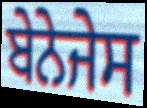
ਬੇਨੇਜੇਸ